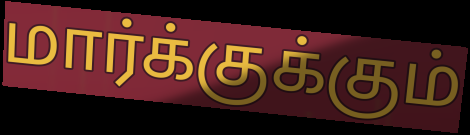
மார்க்குக்கும்